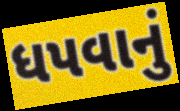
ધપવાનું